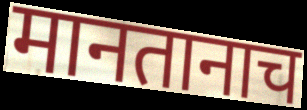
मानतानाच